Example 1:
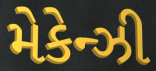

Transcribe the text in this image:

મેકેન્ઝી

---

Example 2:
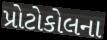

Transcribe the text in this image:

પ્રોટોકોલના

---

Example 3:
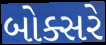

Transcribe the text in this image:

બોક્સરે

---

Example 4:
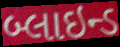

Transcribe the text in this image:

બ્લાઇન્ડ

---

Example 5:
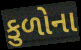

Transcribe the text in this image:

કુળોના